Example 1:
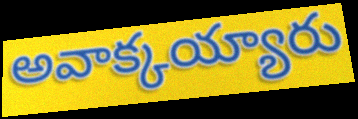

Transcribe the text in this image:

అవాక్కయ్యారు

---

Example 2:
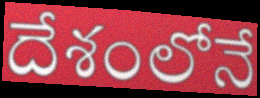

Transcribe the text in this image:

దేశంలోనే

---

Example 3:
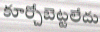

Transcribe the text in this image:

కూర్చోబెట్టలేదు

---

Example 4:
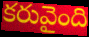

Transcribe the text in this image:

కరువైంది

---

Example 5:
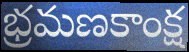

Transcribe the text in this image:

భ్రమణకాంక్ష